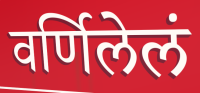
वर्णिलेलं